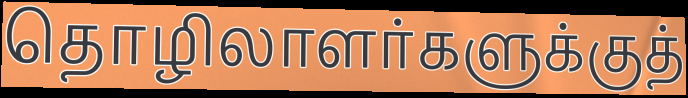
தொழிலாளர்களுக்குத்